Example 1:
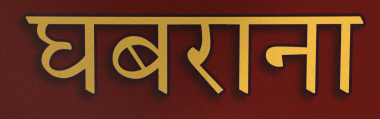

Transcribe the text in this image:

घबराना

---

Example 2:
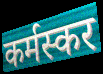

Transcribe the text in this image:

कर्मस्कर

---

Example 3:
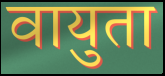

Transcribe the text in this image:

वायुता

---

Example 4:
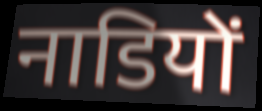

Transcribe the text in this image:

नाडियों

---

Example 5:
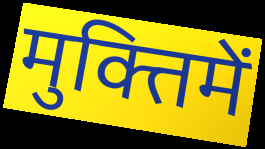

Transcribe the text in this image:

मुक्तिमें